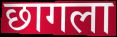
छागला